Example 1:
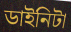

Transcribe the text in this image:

ডাইনিটা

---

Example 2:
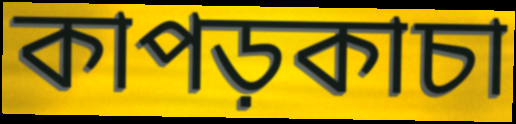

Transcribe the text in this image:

কাপড়কাচা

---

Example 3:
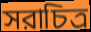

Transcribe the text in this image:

সরাচিত্র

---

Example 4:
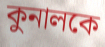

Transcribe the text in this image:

কুনালকে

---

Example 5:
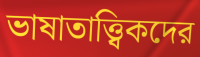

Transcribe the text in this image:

ভাষাতাত্ত্বিকদের